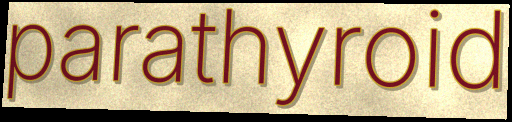
parathyroid